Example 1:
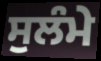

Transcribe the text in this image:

ਸੁਲੰਮੇ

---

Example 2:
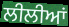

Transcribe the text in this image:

ਲੀਲੀਆਂ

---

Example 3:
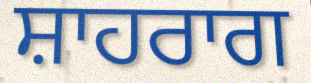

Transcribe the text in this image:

ਸ਼ਾਹਰਾਗ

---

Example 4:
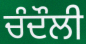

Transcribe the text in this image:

ਚੰਦੌਲੀ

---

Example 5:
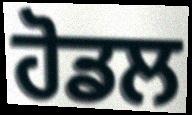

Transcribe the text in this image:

ਹੋਡਲ